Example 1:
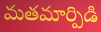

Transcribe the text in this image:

మతమార్పిడి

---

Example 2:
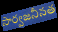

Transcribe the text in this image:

సార్వజనీనత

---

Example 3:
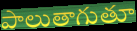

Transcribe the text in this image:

పాలుతాగుతూ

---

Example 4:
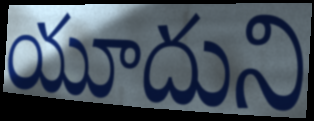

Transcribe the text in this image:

యూదుని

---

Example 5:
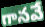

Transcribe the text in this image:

గానవే